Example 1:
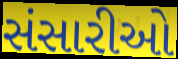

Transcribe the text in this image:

સંસારીઓ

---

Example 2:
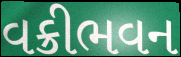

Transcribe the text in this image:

વક્રીભવન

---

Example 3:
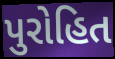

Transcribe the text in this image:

પુરોહિત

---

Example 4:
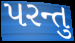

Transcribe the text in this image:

પરન્તુ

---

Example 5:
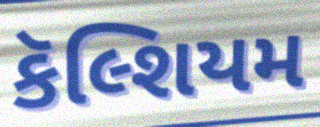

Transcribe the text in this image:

કૅલ્શિયમ